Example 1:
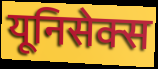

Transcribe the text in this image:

यूनिसेक्स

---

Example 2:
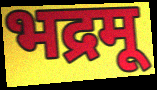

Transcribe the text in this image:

भद्रमू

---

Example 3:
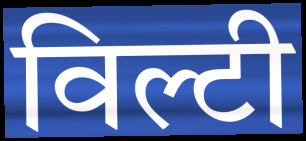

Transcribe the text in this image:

विल्टी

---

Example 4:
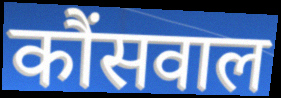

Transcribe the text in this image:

कौंसवाल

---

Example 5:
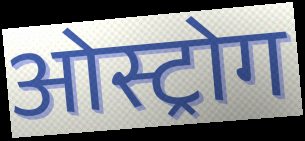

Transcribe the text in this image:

ओस्ट्रोग